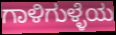
ಗಾಳಿಗುಳ್ಳೆಯ